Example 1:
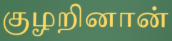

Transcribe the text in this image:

குழறினான்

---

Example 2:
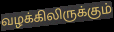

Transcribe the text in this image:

வழக்கிலிருக்கும்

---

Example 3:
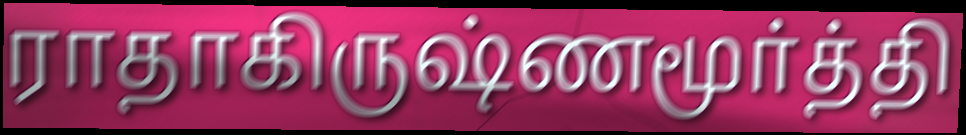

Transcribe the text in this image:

ராதாகிருஷ்ணமூர்த்தி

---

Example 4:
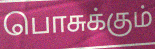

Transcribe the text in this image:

பொசுக்கும்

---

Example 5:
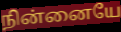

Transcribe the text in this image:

நின்னையே